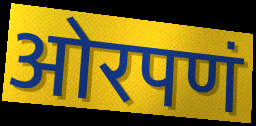
ओरपणं